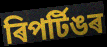
ৰিপৰ্টিঙৰ